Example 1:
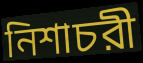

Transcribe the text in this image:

নিশাচরী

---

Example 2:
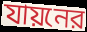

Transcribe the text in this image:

যায়নের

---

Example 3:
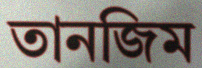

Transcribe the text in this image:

তানজিম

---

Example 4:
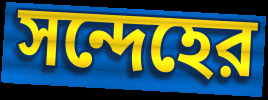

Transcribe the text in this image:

সন্দেহের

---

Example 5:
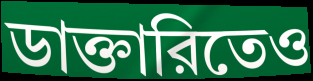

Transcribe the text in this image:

ডাক্তারিতেও